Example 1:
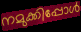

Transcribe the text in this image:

നമുക്കിപ്പോൾ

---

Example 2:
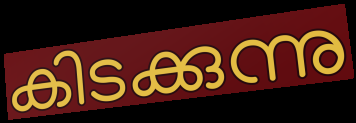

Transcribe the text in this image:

കിടക്കുന്നു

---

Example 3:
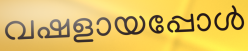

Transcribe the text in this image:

വഷളായപ്പോൾ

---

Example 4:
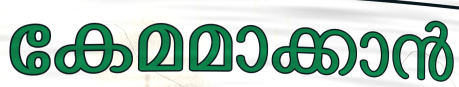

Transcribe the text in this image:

കേമമാക്കാൻ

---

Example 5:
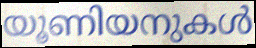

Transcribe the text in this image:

യൂണിയനുകൾ